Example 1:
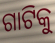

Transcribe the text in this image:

ଗାଟିକୁ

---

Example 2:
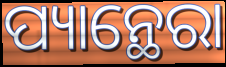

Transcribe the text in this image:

ପ୍ୟାନ୍ଥେରା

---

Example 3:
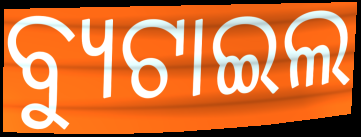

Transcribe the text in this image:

ବ୍ୟୁଟାଇଲ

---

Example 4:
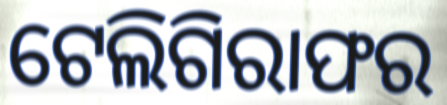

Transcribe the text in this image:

ଟେଲିଗିରାଫର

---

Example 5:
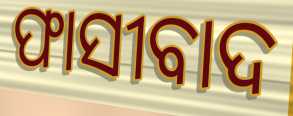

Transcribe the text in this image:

ଫାସୀବାଦ